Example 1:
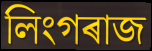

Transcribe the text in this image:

লিংগৰাজ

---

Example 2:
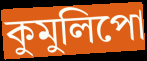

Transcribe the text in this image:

কুমুলিপো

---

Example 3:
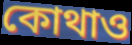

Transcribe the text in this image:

কোথাও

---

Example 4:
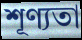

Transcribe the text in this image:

শূণ্যতা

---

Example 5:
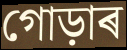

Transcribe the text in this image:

গোড়াৰ